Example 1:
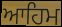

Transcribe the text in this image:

ਆਹਿਮ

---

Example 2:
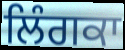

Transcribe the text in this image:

ਲਿੰਗਕਾ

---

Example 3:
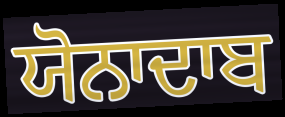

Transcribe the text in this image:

ਯੋਨਾਦਾਬ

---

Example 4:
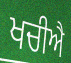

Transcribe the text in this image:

ਖਚੀਐ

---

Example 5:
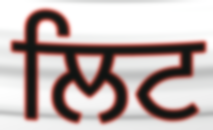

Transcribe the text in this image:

ਲਿਟ